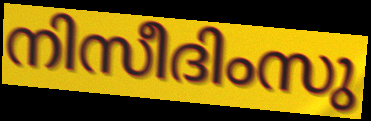
നിസീദിംസു